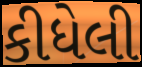
કીધેલી